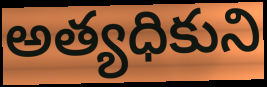
అత్యధికుని